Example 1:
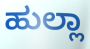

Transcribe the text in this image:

ಹುಲ್ಲಾ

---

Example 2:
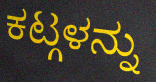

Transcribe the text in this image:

ಕಟ್ಗಳನ್ನು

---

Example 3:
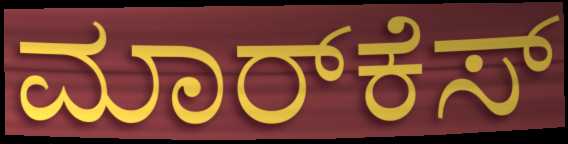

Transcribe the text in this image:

ಮಾರ್‌ಕೆಸ್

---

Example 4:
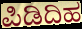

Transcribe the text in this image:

ಪಿಡಿದಿಹ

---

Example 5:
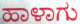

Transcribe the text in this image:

ಹಾಳಾಗು